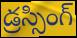
డ్రస్సింగ్